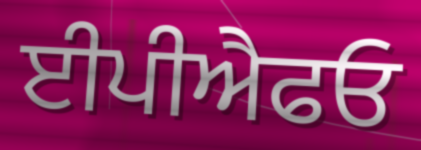
ਈਪੀਐਫਓ